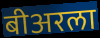
बीअरला